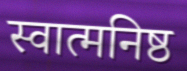
स्वात्मनिष्ठ